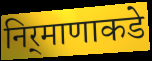
निर्माणाकडे